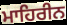
ਮਾਹਿਰੀਨ